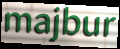
majbur